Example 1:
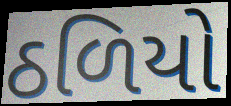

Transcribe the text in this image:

ઠળિયો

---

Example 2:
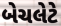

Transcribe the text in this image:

બેચલેટે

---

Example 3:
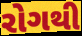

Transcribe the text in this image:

રોગથી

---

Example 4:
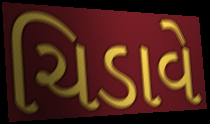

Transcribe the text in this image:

ચિડાવે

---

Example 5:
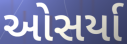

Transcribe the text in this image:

ઓસર્યા